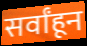
सर्वांहून